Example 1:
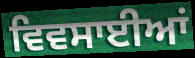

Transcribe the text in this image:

ਵਿਵਸਾਈਆਂ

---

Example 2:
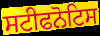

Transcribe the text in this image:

ਸਟੀਫਨੋਟਿਸ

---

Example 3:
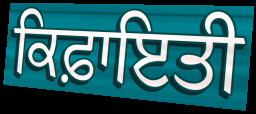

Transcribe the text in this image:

ਕਿਫ਼ਾਇਤੀ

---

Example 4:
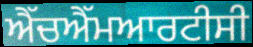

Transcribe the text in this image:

ਐੱਚਐੱਮਆਰਟੀਸੀ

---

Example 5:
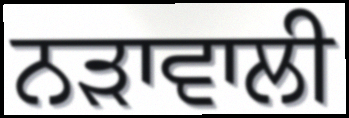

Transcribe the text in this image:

ਨੜਾਵਾਲੀ